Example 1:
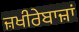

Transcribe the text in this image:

ਜ਼ਖੀਰੇਬਾਜ਼ਾਂ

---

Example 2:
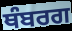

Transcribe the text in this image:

ਥੰਬਰਗ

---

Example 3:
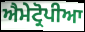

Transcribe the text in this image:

ਐਮੇਟ੍ਰੋਪੀਆ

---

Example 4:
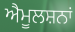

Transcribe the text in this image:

ਐਮੂਲਸ਼ਨਾਂ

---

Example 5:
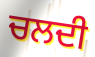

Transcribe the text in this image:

ਚਲਦੀ